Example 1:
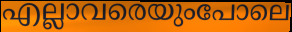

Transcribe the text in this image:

എല്ലാവരെയുംപോലെ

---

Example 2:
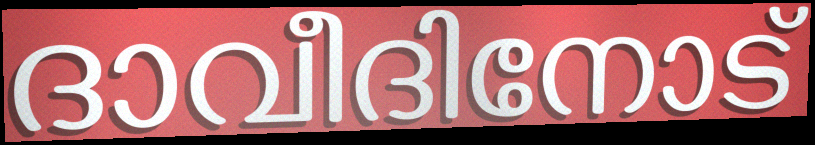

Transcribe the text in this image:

ദാവീദിനോട്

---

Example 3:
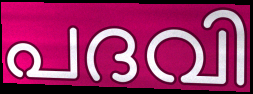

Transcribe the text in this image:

പദവി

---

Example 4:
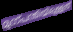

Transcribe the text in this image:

മുന്പന്തിയിലുള്ളത്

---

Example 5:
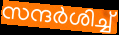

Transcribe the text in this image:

സന്ദർശിച്ച്